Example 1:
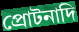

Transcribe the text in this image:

প্রোটনাদি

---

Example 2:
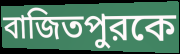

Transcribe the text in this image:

বাজিতপুরকে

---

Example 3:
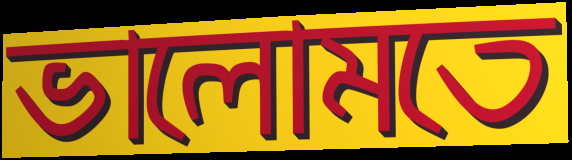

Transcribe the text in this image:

ভালোমতে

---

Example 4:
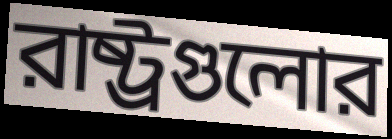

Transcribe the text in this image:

রাষ্ট্রগুলোর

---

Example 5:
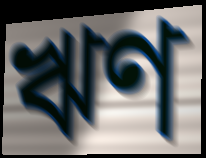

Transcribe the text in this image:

ঋণ